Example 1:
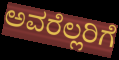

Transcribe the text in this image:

ಅವರೆಲ್ಲರಿಗೆ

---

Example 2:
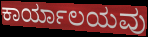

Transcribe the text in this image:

ಕಾರ್ಯಾಲಯವು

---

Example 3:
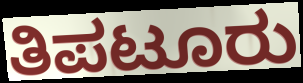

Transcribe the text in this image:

ತಿಪಟೂರು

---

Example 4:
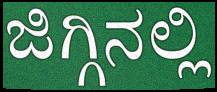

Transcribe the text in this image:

ಜಿಗ್ಗಿನಲ್ಲಿ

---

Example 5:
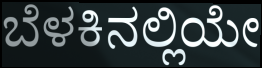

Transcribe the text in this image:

ಬೆಳಕಿನಲ್ಲಿಯೇ